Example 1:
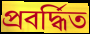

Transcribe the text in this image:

প্রবর্দ্ধিত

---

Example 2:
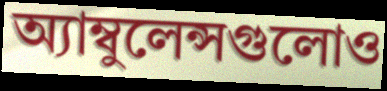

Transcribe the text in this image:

অ্যাম্বুলেন্সগুলোও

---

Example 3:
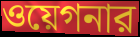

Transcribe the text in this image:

ওয়েগনার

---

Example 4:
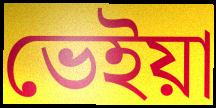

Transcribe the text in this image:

ভেইয়া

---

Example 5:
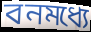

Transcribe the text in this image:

বনমধ্যে